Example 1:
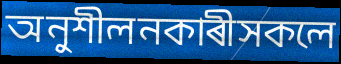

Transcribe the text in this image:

অনুশীলনকাৰীসকলে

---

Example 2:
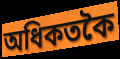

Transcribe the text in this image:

অধিকতকৈ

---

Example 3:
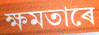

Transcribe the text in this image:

ক্ষমতাৰে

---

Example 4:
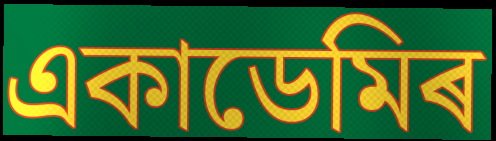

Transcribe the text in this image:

একাডেমিৰ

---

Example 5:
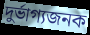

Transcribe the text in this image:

দুৰ্ভাগ্যজনক